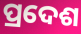
ପ୍ରଦେଶ